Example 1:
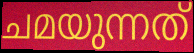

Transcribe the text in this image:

ചമയുന്നത്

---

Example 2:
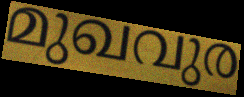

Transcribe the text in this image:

മുഖവുര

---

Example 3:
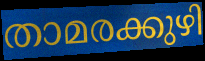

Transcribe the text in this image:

താമരക്കുഴി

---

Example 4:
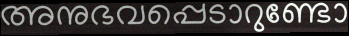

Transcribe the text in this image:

അനുഭവപ്പെടാറുണ്ടോ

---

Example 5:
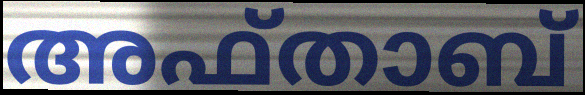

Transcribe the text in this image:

അഫ്താബ്